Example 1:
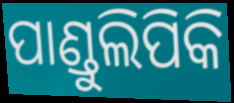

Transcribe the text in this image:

ପାଣ୍ଡୁଲିପିକି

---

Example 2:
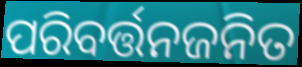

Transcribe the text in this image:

ପରିବର୍ତ୍ତନଜନିତ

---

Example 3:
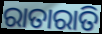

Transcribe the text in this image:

ରାତାରାତି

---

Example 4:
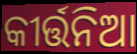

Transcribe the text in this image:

କୀର୍ତ୍ତନିଆ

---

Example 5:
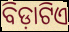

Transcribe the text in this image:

ବିଡ଼ାଟିଏ